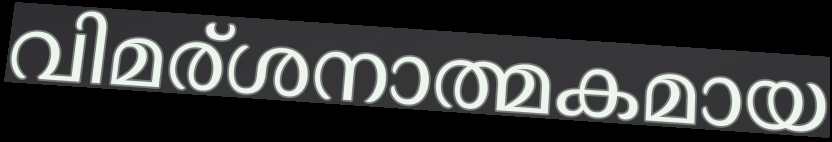
വിമര്ശനാത്മകമായ